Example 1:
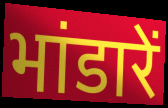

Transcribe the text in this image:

भांडारें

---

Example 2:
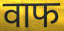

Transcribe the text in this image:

वाफ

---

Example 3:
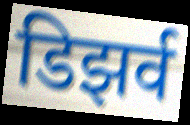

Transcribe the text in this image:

डिझर्व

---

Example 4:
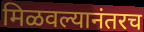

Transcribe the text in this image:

मिळवल्यानंतरच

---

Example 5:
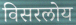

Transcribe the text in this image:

विसरलोय